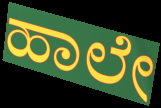
ಹಾಲೇ